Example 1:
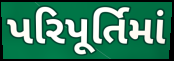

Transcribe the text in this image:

પરિપૂર્તિમાં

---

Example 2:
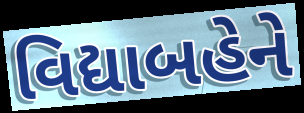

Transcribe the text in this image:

વિદ્યાબહેને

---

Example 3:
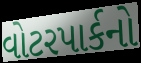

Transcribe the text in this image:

વોટરપાર્કનો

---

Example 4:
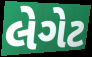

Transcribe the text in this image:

લેગેટ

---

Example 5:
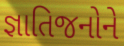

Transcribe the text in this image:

જ્ઞાતિજનોને